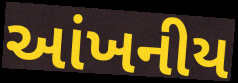
આંખનીય